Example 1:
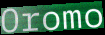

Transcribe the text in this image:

Oromo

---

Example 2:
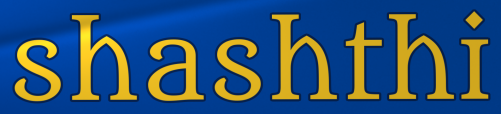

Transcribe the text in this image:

shashthi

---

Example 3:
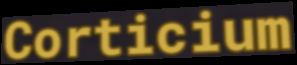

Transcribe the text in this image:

Corticium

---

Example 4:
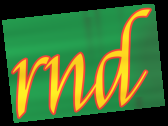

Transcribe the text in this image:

rnd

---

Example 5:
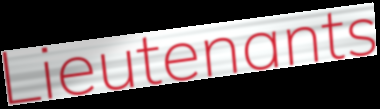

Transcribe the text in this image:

Lieutenants